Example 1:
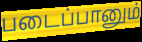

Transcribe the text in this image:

படைப்பானும்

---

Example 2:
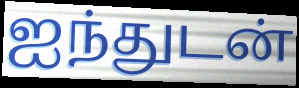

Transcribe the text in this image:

ஐந்துடன்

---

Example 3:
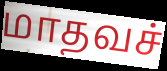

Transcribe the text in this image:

மாதவச்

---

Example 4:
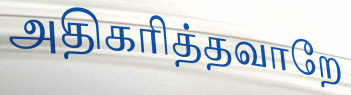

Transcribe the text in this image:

அதிகரித்தவாறே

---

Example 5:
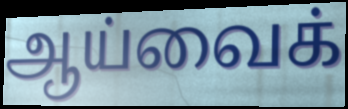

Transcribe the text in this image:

ஆய்வைக்